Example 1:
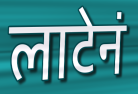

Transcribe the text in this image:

लाटेनं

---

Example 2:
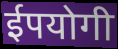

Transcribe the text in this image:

ईपयोगी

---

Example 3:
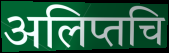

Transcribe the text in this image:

अलिप्तचि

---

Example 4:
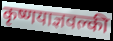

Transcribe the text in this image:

कृष्णयाज्ञवल्की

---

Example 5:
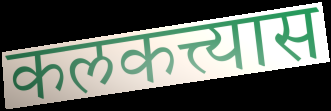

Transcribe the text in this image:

कलकत्त्यास